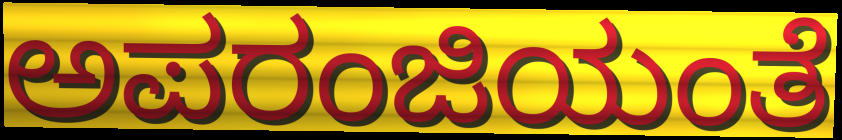
ಅಪರಂಜಿಯಂತೆ